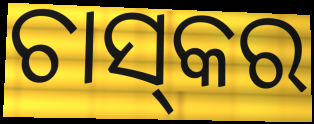
ଚାସ୍‌କର